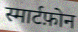
स्मार्टफ़ोन